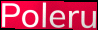
Poleru